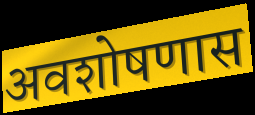
अवशोषणास